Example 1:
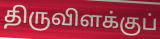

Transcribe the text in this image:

திருவிளக்குப்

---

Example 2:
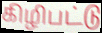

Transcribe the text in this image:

கிழிபட்டு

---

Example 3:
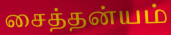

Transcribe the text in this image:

சைத்தன்யம்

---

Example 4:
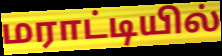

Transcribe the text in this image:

மராட்டியில்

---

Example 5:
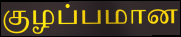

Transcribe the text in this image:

குழப்பமான